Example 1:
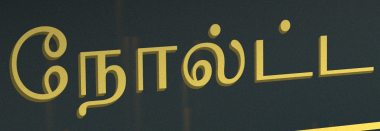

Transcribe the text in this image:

நோல்ட்ட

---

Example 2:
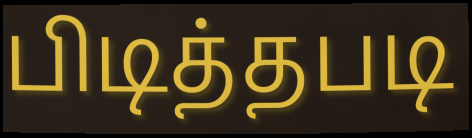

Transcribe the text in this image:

பிடித்தபடி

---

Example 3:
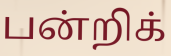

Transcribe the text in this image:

பன்றிக்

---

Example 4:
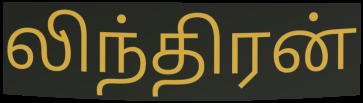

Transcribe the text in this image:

லிந்திரன்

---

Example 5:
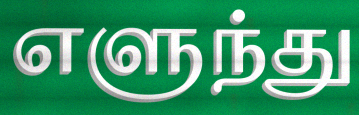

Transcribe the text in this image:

எளுந்து